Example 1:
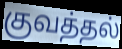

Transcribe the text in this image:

குவத்தல்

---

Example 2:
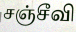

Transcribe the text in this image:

சஞ்சீவி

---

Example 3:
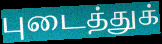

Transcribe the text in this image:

புடைத்துக்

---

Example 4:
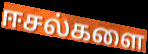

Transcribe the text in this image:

ஈசல்களை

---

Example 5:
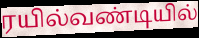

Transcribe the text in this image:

ரயில்வண்டியில்